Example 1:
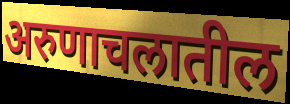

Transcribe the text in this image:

अरुणाचलातील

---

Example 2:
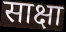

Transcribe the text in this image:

साक्षा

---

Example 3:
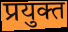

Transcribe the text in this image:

प्रयुक्त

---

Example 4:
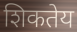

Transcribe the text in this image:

शिकतेय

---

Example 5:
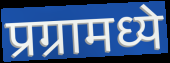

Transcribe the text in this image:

प्रग्रामध्ये